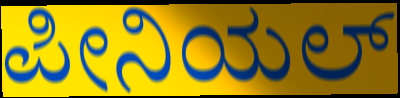
ಪೀನಿಯಲ್